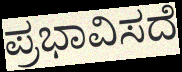
ಪ್ರಭಾವಿಸದೆ